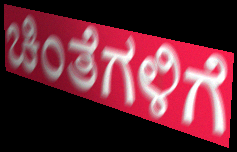
ಚಿಂತೆಗಳಿಗೆ